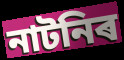
নাটনিৰ